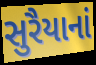
સુરૈયાનાં